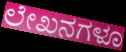
ಲೇಖನಗಳೂ